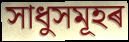
সাধুসমূহৰ